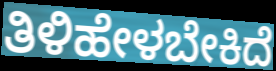
ತಿಳಿಹೇಳಬೇಕಿದೆ